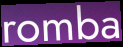
romba